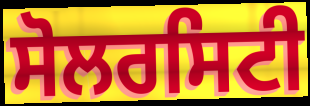
ਸੋਲਰਸਿਟੀ